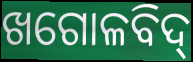
ଖଗୋଳବିଦ୍